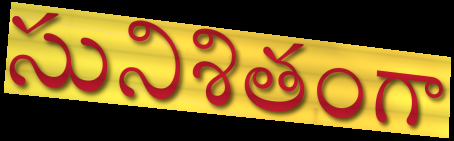
సునిశితంగా